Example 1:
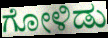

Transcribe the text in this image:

ಗೋಳಿಡು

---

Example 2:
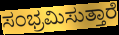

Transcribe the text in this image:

ಸಂಭ್ರಮಿಸುತ್ತಾರೆ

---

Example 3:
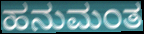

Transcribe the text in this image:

ಹನುಮಂತ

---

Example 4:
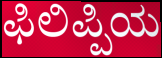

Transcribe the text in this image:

ಫಿಲಿಪ್ಪಿಯ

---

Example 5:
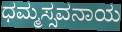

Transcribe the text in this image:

ಧಮ್ಮಸ್ಸವನಾಯ